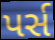
પર્સ